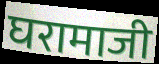
घरामाजी